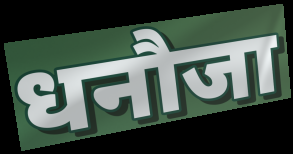
धनौजा